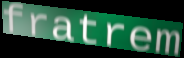
fratrem